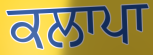
ਕਲਾਪਾ